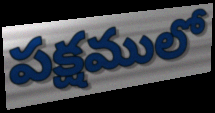
పక్షములో